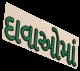
દાવાઓમાં